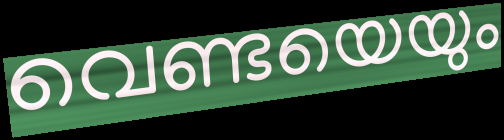
വെണ്ടയെയും